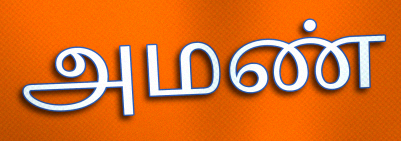
அமண்